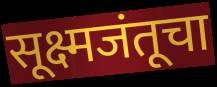
सूक्ष्मजंतूचा